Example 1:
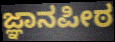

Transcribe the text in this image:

ಜ್ಞಾನಪೀಠ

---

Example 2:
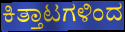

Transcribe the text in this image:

ಕಿತ್ತಾಟಗಳಿಂದ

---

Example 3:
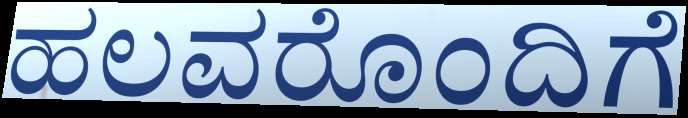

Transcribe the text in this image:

ಹಲವರೊಂದಿಗೆ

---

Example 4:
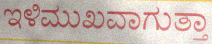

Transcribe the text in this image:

ಇಳಿಮುಖವಾಗುತ್ತಾ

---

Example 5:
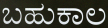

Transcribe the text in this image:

ಬಹುಕಾಲ